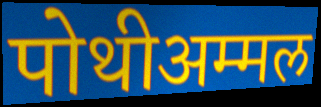
पोथीअम्मल